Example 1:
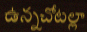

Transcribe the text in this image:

ఉన్నచోటల్లా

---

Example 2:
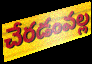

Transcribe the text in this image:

చేరడంవల్ల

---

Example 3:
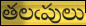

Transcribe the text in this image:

తలఁపులు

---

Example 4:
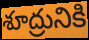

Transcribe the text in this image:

శూద్రునికి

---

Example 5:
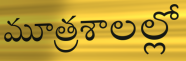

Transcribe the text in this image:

మూత్రశాలల్లో